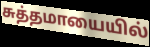
சுத்தமாயையில்